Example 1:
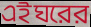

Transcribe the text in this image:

এইঘরের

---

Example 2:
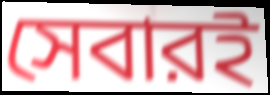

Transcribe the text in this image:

সেবারই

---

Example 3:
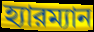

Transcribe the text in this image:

হ্যারম্যান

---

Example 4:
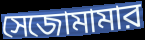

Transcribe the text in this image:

সেজোমামার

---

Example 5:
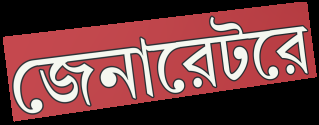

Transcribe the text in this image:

জেনারেটরে